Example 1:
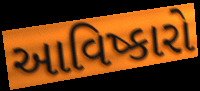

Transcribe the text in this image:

આવિષ્કારો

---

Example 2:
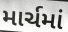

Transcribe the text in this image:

માર્ચમાં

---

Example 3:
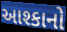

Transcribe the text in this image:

આશ્કાનો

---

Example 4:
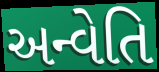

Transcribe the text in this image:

અન્વેતિ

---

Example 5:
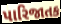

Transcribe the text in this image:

પારિજાતક